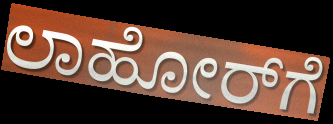
ಲಾಹೋರ್‌ಗೆ